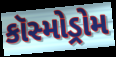
કૉસ્મોડ્રોમ